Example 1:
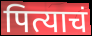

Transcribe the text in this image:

पित्याचं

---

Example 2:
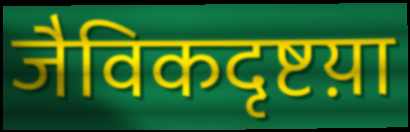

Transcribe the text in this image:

जैविकदृष्टय़ा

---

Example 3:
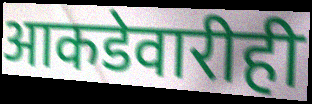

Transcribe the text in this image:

आकडेवारीही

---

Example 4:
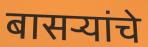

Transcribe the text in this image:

बासऱ्यांचे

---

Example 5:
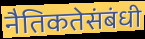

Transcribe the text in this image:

नैतिकतेसंबंधी